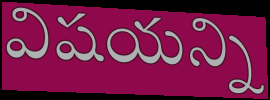
విషయన్ని